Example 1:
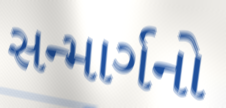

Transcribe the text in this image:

સન્માર્ગનો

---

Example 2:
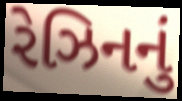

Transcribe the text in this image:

રેઝિનનું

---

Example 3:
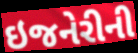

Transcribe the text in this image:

ઇજનેરીની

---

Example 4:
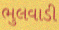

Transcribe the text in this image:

ભુલવાડી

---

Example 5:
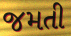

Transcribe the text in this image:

જમતી